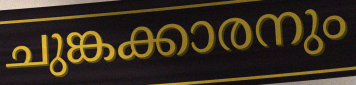
ചുങ്കക്കാരനും